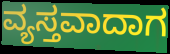
ವ್ಯಸ್ತವಾದಾಗ